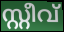
സ്റ്റീവ്